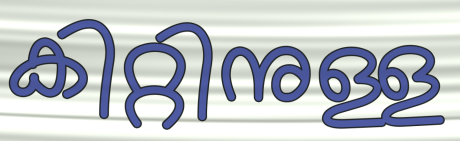
കിറ്റിനുള്ള